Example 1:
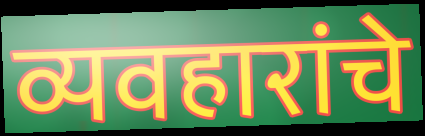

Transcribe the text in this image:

व्यवहारांचे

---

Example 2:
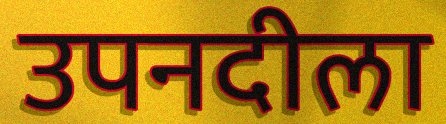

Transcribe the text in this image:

उपनदीला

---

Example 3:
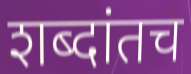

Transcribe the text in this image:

शब्दांतच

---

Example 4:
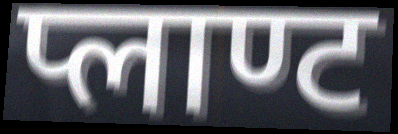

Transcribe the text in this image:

प्लाण्ट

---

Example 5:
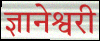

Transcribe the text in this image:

ज्ञानेश्वरी